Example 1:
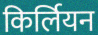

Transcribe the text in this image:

किर्लियन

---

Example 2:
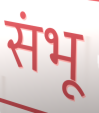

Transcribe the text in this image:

संभू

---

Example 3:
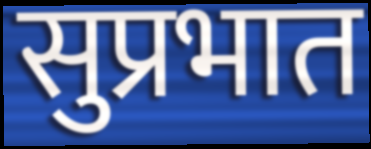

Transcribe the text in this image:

सुप्रभात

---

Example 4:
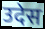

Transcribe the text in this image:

उदेस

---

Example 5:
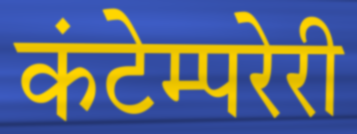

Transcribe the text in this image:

कंटेम्परेरी